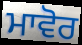
ਮਾਵੋਰ